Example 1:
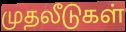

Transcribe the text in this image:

முதலீடுகள்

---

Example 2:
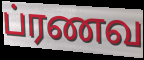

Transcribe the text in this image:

ப்ரணவ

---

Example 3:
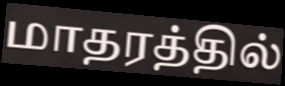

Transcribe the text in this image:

மாதரத்தில்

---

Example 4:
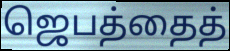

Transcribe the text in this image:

ஜெபத்தைத்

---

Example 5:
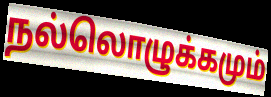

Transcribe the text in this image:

நல்லொழுக்கமும்